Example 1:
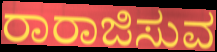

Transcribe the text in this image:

ರಾರಾಜಿಸುವ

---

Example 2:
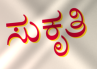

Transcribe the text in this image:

ಸುಕೃತಿ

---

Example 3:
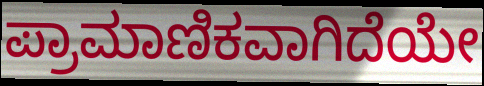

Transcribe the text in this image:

ಪ್ರಾಮಾಣಿಕವಾಗಿದೆಯೇ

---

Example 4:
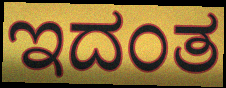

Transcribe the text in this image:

ಇದಂತ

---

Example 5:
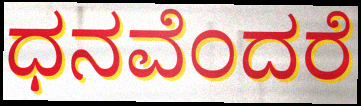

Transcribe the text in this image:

ಧನವೆಂದರೆ